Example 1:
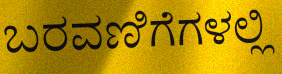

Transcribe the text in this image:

ಬರವಣಿಗೆಗಳಲ್ಲಿ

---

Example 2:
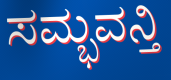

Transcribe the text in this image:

ಸಮ್ಭವನ್ತಿ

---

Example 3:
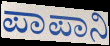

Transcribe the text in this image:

ಪಾಪಾನಿ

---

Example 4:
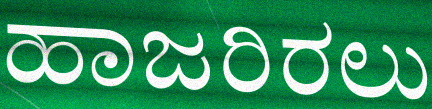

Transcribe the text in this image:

ಹಾಜರಿರಲು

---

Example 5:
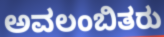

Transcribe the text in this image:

ಅವಲಂಬಿತರು